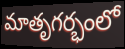
మాతృగర్భంలో